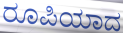
ರೂಪಿಯಾದ